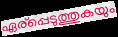
ഏര്പ്പെടുത്തുകയും